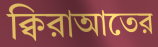
ক্বিরাআতের